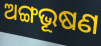
ଅଙ୍ଗଭୂଷଣ